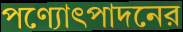
পণ্যোৎপাদনের